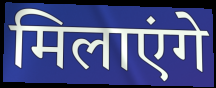
मिलाएंगे